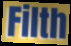
Filth